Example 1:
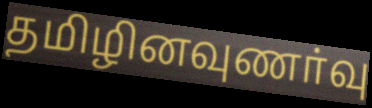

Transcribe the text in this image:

தமிழினவுணர்வு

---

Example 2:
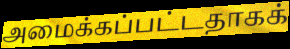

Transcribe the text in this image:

அமைக்கப்பட்டதாகக்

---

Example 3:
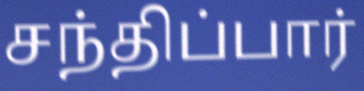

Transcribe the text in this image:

சந்திப்பார்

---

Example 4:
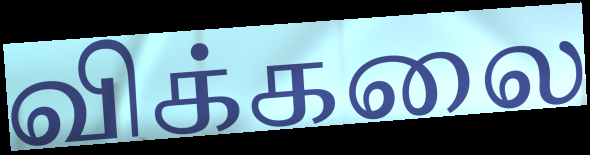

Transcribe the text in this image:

விக்கலை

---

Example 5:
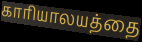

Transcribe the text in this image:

காரியாலயத்தை